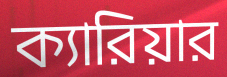
ক্যারিয়ার